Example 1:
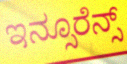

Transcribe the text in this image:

ಇನ್ಸೂರೆನ್ಸ್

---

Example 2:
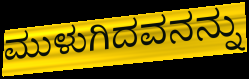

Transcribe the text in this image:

ಮುಳುಗಿದವನನ್ನು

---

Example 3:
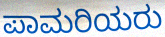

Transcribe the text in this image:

ಪಾಮರಿಯರು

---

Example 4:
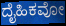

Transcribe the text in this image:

ದೈಹಿಕವೋ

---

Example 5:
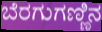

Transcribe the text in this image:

ಬೆರಗುಗಣ್ಣಿನ